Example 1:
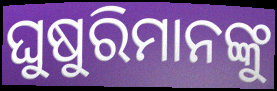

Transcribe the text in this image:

ଘୁଷୁରିମାନଙ୍କୁ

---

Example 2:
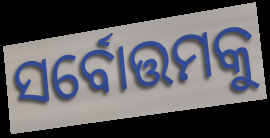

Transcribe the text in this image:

ସର୍ବୋତ୍ତମକୁ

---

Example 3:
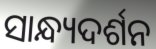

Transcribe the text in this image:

ସାନ୍ଧ୍ୟଦର୍ଶନ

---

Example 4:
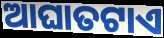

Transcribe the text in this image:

ଆଘାତଟାଏ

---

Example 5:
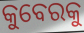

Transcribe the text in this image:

କୁବେରକୁ